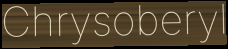
Chrysoberyl